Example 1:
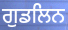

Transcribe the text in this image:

ਗੁਡਲਿਨ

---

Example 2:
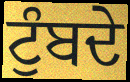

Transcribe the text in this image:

ਟੁੰਬਦੇ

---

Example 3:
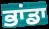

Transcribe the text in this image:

ਭਾਂਡਾ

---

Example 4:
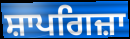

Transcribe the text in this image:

ਸ਼ਾਪਗਿਜ਼ਾ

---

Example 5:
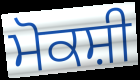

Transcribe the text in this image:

ਮੋਕਸ਼ੀ